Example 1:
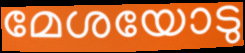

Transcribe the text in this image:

മേശയോടു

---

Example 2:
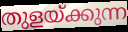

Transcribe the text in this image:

തുളയ്ക്കുന്ന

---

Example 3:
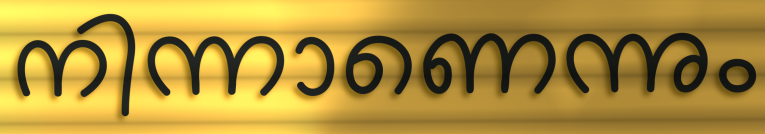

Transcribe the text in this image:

നിന്നാണെന്നും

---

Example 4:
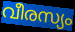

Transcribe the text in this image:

വീരസ്യം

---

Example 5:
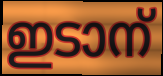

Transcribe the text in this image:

ഇടാന്